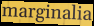
marginalia